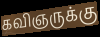
கவிஞருக்கு